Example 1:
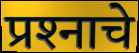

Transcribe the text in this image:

प्रश्‍नाचे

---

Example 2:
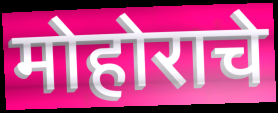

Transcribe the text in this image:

मोहोराचे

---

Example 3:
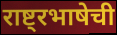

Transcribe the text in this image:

राष्ट्रभाषेची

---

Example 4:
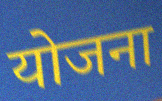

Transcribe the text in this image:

योजना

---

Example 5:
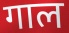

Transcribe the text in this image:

गाल